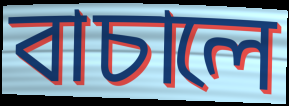
বাচালে